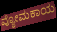
ವ್ಯೋಮಕಾಯ